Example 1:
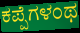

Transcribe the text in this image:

ಕಪ್ಪೆಗಳಂಥ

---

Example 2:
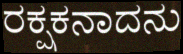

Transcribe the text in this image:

ರಕ್ಷಕನಾದನು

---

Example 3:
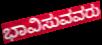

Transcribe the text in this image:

ಭಾವಿಸುವವರು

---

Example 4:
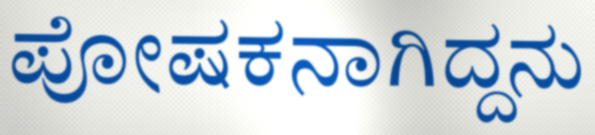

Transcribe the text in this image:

ಪೋಷಕನಾಗಿದ್ದನು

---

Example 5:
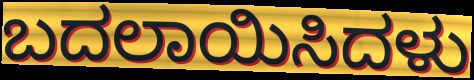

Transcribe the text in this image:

ಬದಲಾಯಿಸಿದಳು